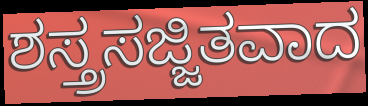
ಶಸ್ತ್ರಸಜ್ಜಿತವಾದ